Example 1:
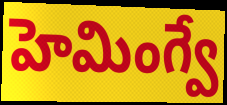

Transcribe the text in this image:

హెమింగ్వే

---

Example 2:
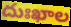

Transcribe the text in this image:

దుఃఖాల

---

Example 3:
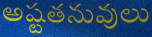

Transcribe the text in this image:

అష్టతనువులు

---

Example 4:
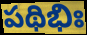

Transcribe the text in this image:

పథిభిః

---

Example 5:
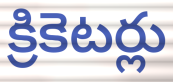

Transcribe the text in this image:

క్రికెటర్లు